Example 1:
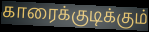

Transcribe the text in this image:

காரைக்குடிக்கும்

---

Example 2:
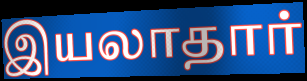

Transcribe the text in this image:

இயலாதார்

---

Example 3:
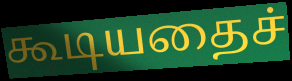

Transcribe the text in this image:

கூடியதைச்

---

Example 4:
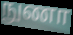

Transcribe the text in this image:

நுணா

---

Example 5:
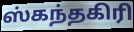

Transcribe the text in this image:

ஸ்கந்தகிரி